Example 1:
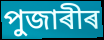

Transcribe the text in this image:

পুজাৰীৰ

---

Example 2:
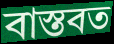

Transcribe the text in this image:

বাস্তবত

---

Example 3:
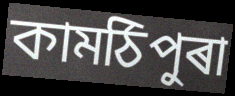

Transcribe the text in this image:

কামঠিপুৰা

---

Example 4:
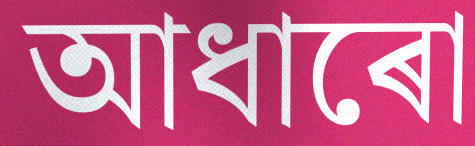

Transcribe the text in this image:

আধাৰো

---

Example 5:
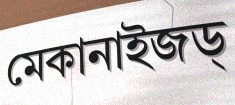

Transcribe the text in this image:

মেকানাইজড্